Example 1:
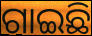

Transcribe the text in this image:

ଗାଇଛି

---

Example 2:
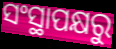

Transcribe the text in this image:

ସଂସ୍ଥାପକ୍ଷରୁ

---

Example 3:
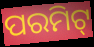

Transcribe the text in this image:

ପରମିଟ୍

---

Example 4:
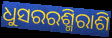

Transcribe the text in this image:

ଧୁସରରଶ୍ମିରାଶି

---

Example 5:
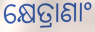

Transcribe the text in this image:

କ୍ଷେତ୍ରାଣାଂ